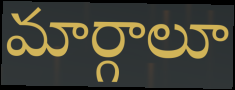
మార్గాలూ